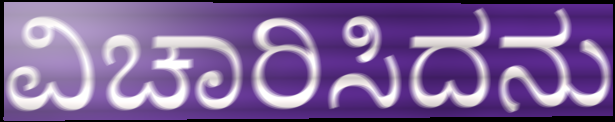
ವಿಚಾರಿಸಿದನು